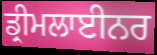
ਡ੍ਰੀਮਲਾਈਨਰ